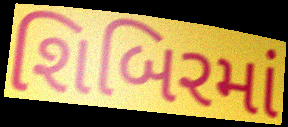
શિબિરમાં